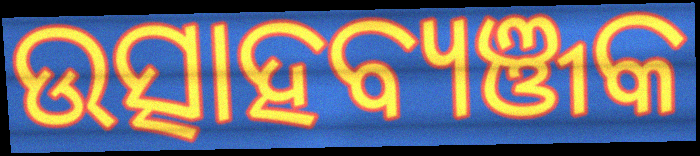
ଉତ୍ସାହବ୍ୟଞ୍ଜକ